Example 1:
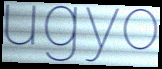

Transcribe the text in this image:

ugyo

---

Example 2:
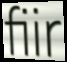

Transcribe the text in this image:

fiir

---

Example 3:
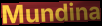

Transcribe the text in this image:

Mundina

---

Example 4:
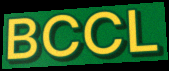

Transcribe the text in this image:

BCCL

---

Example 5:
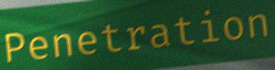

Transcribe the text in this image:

Penetration